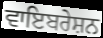
ਵਾਇਬਰੇਸ਼ਨ